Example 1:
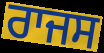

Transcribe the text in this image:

ਰਾਜਸ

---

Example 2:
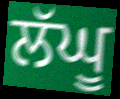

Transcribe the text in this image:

ਲੱਘੂ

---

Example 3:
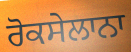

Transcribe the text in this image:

ਰੋਕਸੇਲਾਨਾ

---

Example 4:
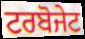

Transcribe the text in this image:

ਟਰਬੋਜੇਟ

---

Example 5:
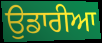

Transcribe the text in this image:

ਉਡਾਰੀਆ